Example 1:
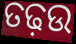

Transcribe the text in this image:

ତଢ଼ଉ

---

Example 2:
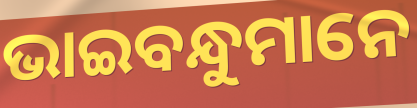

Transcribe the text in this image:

ଭାଇବନ୍ଧୁମାନେ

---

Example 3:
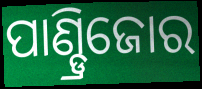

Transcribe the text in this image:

ପାଣ୍ଡ୍ରିଜୋର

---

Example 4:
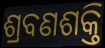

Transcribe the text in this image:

ଶ୍ରବଣଶକ୍ତି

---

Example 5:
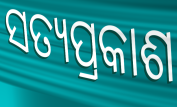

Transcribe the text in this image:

ସତ୍ୟପ୍ରକାଶ